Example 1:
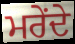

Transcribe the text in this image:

ਮਰੇਂਦੇ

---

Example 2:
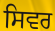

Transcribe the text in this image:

ਸਿਵਰ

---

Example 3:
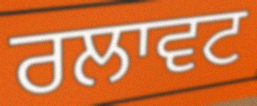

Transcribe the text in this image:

ਰਲਾਵਟ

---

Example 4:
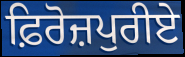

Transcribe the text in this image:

ਫ਼ਿਰੋਜ਼ਪੁਰੀਏ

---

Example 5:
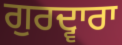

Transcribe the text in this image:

ਗੁਰਦ੍ਵਾਰਾ